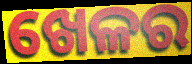
ଖେଳର